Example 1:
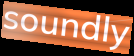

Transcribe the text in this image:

soundly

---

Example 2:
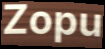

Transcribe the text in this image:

Zopu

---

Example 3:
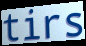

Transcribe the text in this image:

tirs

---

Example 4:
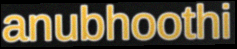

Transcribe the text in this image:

anubhoothi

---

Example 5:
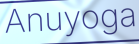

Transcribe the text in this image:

Anuyoga